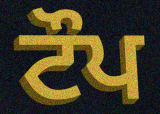
ਟੌਪ